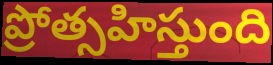
ప్రోత్సహిస్తుంది